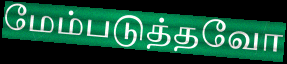
மேம்படுத்தவோ